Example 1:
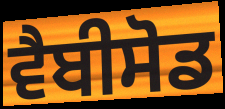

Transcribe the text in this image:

ਵੈਬੀਸੋਡ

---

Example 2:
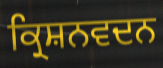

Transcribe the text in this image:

ਕ੍ਰਿਸ਼ਨਵਦਨ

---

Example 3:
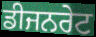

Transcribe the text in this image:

ਡੀਜਨਰੇਟ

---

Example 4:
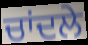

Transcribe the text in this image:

ਚਾਂਦਲੇ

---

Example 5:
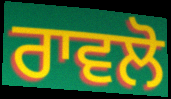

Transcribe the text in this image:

ਰਾਵਲੋ